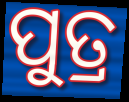
ପୁତ୍ର